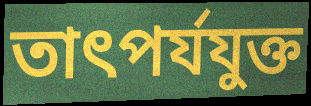
তাৎপর্যযুক্ত